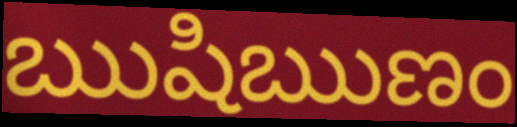
ఋషిఋణం